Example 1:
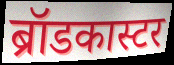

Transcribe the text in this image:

ब्रॉडकास्टर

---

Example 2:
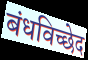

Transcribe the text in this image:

बंधविच्छेद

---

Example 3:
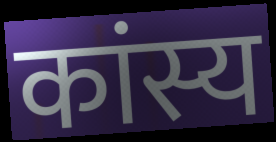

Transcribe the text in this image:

कांस्‍य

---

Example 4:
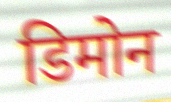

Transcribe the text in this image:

डिमोन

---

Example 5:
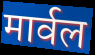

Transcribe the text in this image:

मार्वल